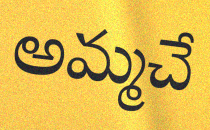
అమ్మచే